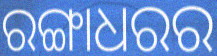
ରଙ୍ଗାଧରର